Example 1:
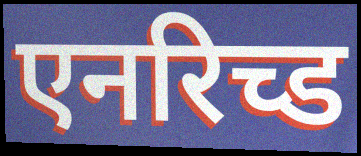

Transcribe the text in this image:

एनरिच्ड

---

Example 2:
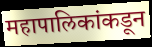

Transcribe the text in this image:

महापालिकांकडून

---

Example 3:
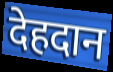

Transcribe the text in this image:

देहदान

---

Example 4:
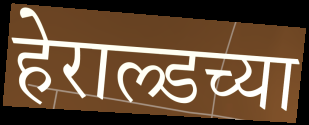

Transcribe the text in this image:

हेराल्डच्या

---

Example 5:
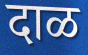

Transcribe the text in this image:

दाळ